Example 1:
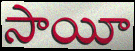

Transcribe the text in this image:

సాయీ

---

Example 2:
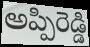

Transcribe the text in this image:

అప్పిరెడ్డి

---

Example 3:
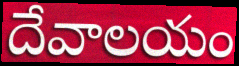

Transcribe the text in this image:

దేవాలయం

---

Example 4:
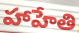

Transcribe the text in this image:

హాహేతి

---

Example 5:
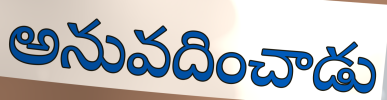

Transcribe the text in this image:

అనువదించాడు